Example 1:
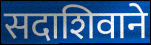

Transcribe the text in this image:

सदाशिवाने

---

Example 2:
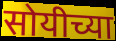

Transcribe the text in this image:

सोयीच्या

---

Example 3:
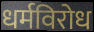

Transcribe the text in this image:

धर्मविरोध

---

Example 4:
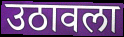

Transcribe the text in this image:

उठावला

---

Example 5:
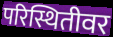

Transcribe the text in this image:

परिस्थितीवर